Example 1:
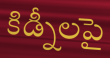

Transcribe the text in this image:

కిడ్నీలపై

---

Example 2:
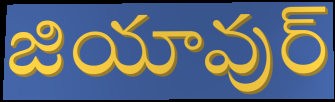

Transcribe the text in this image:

జియావుర్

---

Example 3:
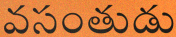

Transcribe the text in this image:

వసంతుడు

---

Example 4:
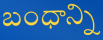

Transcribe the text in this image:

బంధాన్ని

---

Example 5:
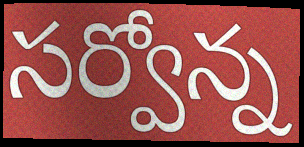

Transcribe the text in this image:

సర్వోన్న